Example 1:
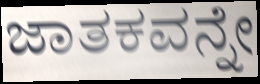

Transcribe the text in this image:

ಜಾತಕವನ್ನೇ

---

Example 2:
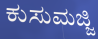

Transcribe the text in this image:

ಕುಸುಮಜ್ಜಿ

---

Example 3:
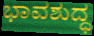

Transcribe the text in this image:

ಭಾವಶುದ್ಧ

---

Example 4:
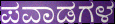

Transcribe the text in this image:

ಪವಾಡಗಳ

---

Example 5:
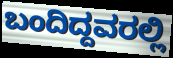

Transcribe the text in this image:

ಬಂದಿದ್ದವರಲ್ಲಿ